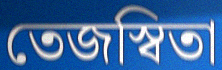
তেজস্বিতা